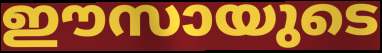
ഈസായുടെ